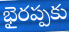
భైరప్పకు